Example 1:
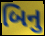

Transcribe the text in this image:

બિનુ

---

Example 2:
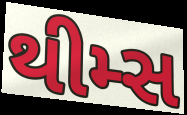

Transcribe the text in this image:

થીમ્સ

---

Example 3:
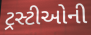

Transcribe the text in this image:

ટ્રસ્ટીઓની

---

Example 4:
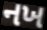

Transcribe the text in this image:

નખ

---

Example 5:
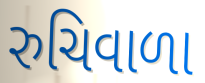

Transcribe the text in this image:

રુચિવાળા